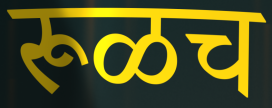
रूळच